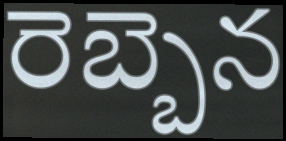
రెబ్బెన